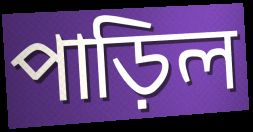
পাড়িল